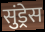
सुंड्रेस